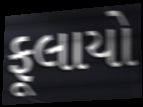
ફૂલાયો